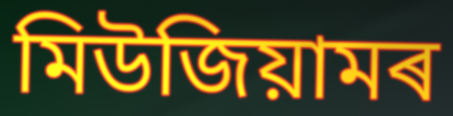
মিউজিয়ামৰ